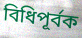
বিধিপূর্বক